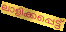
ലാളിക്കപ്പെട്ട്